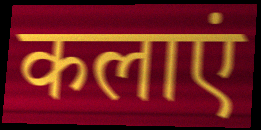
कलाएं